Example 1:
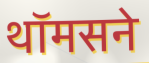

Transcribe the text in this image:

थॉमसने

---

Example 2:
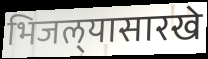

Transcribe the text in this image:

भिजल्यासारखे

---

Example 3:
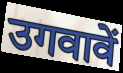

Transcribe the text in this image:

उगवावें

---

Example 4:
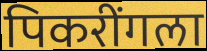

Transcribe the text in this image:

पिकरींगला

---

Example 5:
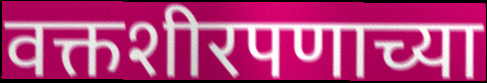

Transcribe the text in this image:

वक्तशीरपणाच्या